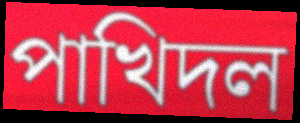
পাখিদল